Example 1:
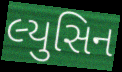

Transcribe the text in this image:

લ્યુસિન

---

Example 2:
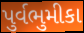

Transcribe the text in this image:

પુર્વભુમીકા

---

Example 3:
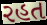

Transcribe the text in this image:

રહત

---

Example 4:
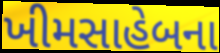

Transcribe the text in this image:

ખીમસાહેબના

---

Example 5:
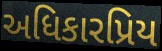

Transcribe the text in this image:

અધિકારપ્રિય